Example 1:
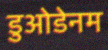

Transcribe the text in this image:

डुओडेनम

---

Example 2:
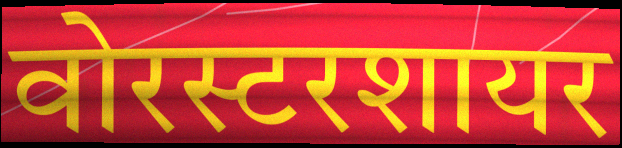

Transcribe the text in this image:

वोरस्टरशायर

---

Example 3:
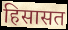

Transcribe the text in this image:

हिसासत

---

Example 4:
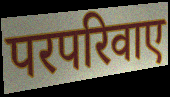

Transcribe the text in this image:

परपरिवाए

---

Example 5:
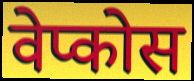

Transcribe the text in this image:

वेप्कोस